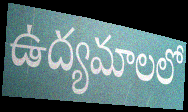
ఉద్యమాలలో